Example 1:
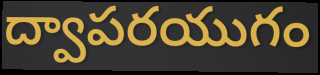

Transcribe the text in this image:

ద్వాపరయుగం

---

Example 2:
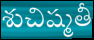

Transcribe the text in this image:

శుచిష్మతీ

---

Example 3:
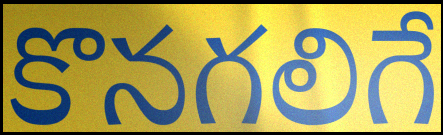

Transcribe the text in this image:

కొనగలిగే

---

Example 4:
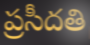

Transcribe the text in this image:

ప్రసీదతి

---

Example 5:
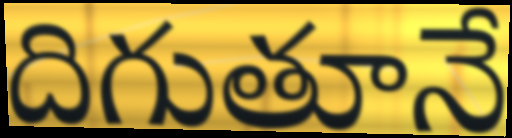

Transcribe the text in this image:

దిగుతూనే